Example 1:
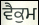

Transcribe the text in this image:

ਵੈਕੁਮ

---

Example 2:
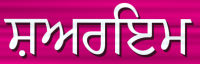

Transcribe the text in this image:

ਸ਼ਅਰਇਮ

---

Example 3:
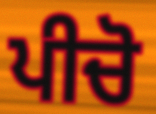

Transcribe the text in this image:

ਪੀਚੋ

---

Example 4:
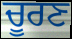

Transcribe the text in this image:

ਚੂਰਣ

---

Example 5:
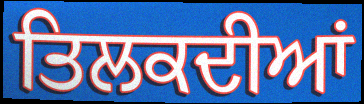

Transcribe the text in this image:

ਤਿਲਕਦੀਆਂ